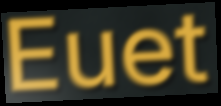
Euet